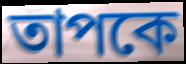
তাপকে